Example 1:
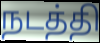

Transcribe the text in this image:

நடத்தி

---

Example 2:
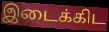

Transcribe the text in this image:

இடைக்கிட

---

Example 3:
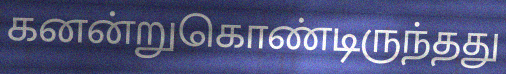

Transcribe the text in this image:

கனன்றுகொண்டிருந்தது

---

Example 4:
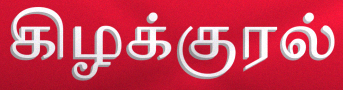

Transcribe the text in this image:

கிழக்குரல்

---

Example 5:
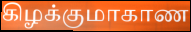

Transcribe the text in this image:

கிழக்குமாகாண